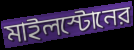
মাইলস্টোনের